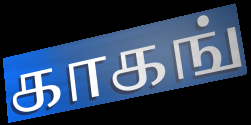
காகங்